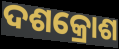
ଦଶକ୍ରୋଶ